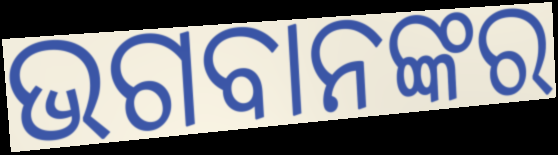
ଭଗବାନଙ୍କର